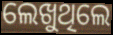
ଲେଖୁଥିଲେ